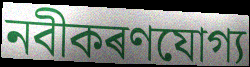
নবীকৰণযোগ্য